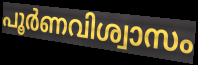
പൂർണവിശ്വാസം